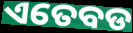
ଏତେବଡ